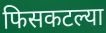
फिसकटल्या